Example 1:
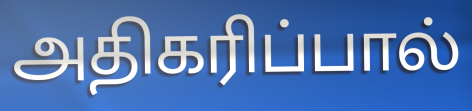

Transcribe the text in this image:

அதிகரிப்பால்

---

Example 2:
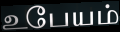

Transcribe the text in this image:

உபேயம்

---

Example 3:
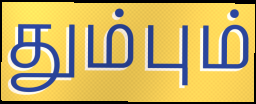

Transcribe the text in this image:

தும்பும்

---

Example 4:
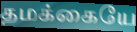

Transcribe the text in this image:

தமக்கையே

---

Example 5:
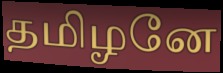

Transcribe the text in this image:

தமிழனே